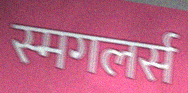
स्‍मगलर्स